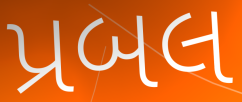
પ્રબલ